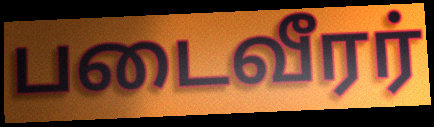
படைவீரர்